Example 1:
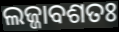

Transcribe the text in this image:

ଲଜ୍ଜାବଶତଃ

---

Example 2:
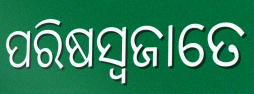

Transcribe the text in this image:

ପରିଷସ୍ଵଜାତେ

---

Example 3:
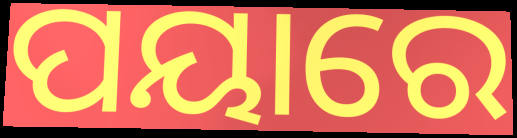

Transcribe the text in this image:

ପୟାରେ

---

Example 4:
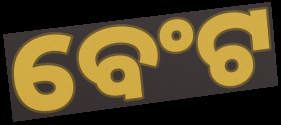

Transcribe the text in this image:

ବେଂଟ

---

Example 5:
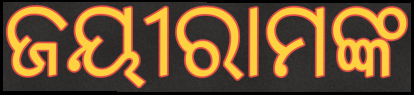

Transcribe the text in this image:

ଜୟୀରାମଙ୍କ